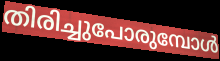
തിരിച്ചുപോരുമ്പോൾ